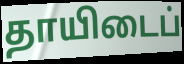
தாயிடைப்